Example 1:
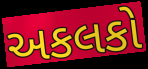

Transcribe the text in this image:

અકલકો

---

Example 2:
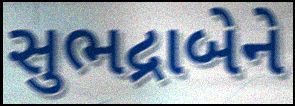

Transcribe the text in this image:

સુભદ્રાબેને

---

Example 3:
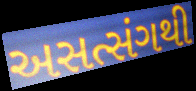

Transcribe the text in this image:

અસત્સંગથી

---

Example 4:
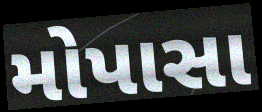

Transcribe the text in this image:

મોપાસા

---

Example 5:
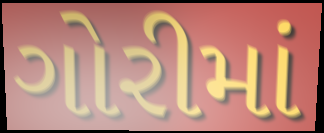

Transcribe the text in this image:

ગોરીમાં